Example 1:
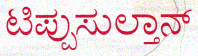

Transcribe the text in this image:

ಟಿಪ್ಪುಸುಲ್ತಾನ್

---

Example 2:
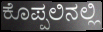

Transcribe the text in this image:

ಕೊಪ್ಪಲಿನಲ್ಲಿ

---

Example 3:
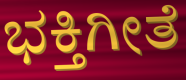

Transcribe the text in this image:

ಭಕ್ತಿಗೀತೆ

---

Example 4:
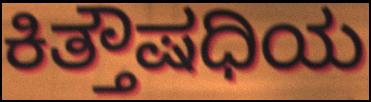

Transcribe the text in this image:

ಕಿತ್ತೌಷಧಿಯ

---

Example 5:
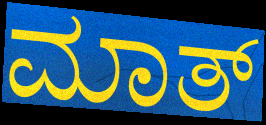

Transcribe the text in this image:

ಮಾತ್